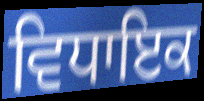
ਵਿਧਾਇਕ